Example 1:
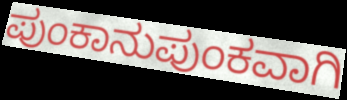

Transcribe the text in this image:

ಪುಂಕಾನುಪುಂಕವಾಗಿ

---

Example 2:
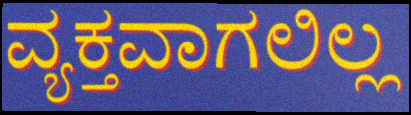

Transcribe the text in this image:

ವ್ಯಕ್ತವಾಗಲಿಲ್ಲ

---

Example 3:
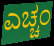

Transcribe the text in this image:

ಎಚ್ಚಂ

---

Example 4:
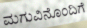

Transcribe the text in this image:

ಮಗುವಿನೊಂದಿಗೆ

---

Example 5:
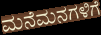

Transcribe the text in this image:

ಮನೆಮನಗಳಿಗೆ